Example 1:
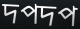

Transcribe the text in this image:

দপদপ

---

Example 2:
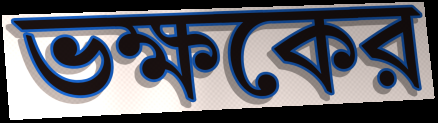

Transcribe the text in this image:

ভক্ষকের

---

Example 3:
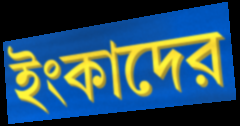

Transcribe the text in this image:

ইংকাদের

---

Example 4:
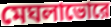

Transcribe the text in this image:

মেঘলাভোরে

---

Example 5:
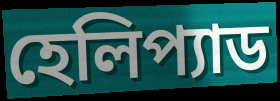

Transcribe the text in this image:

হেলিপ্যাড